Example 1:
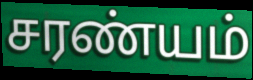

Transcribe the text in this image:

சரண்யம்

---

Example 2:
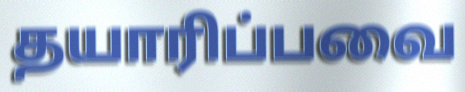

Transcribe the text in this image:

தயாரிப்பவை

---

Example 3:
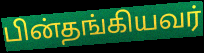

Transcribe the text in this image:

பின்தங்கியவர்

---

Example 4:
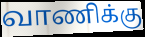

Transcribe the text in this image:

வாணிக்கு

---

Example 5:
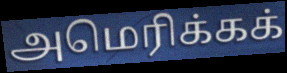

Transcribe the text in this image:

அமெரிக்கக்